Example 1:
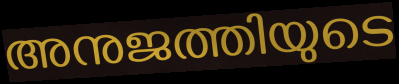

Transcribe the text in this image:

അനുജത്തിയുടെ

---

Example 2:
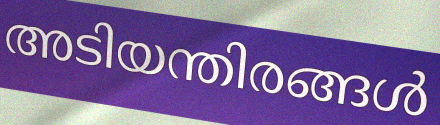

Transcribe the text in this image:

അടിയന്തിരങ്ങൾ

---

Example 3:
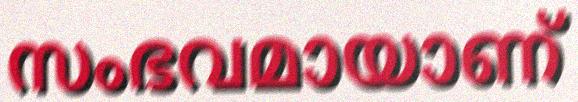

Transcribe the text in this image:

സംഭവമായാണ്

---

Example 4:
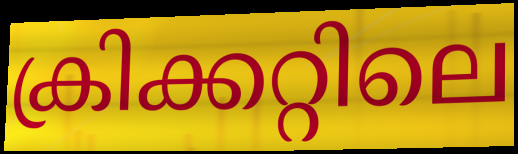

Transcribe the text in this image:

ക്രിക്കറ്റിലെ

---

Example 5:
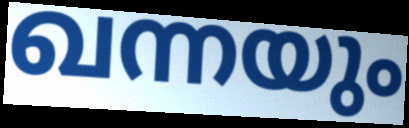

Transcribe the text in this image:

ഖന്നയും